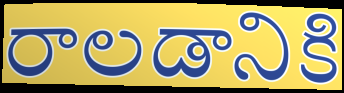
రాలడానికి